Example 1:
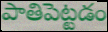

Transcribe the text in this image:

పాతిపెట్టడం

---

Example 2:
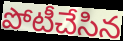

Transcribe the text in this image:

పోటీచేసిన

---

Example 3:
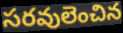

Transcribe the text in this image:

సరవులెంచిన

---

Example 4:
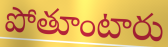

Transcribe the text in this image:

పోతూంటారు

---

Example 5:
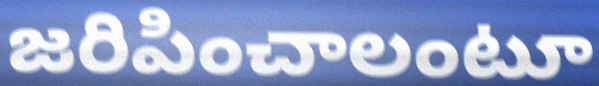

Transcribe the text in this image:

జరిపించాలంటూ